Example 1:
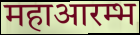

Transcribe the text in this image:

महाआरम्भ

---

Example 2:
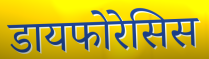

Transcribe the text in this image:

डायफोरेसिस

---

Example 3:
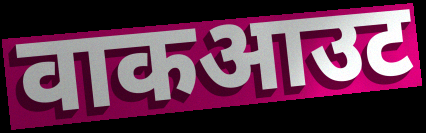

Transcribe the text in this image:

वाकआउट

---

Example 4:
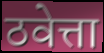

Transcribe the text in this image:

ठवेत्ता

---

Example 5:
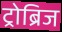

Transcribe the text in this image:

ट्रोब्रिज